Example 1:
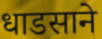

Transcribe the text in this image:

धाडसाने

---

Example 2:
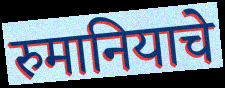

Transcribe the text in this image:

रुमानियाचे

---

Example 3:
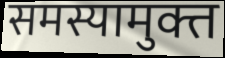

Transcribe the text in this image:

समस्यामुक्त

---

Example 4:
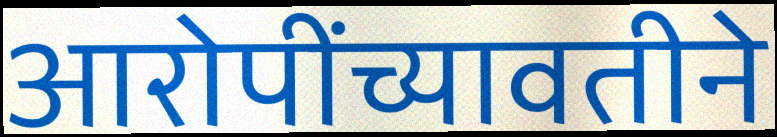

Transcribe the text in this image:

आरोपींच्यावतीने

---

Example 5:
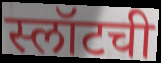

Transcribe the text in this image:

स्लॉटची